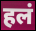
हलं